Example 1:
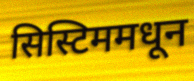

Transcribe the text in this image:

सिस्टिममधून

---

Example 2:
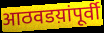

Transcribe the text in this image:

आठवडय़ांपूर्वी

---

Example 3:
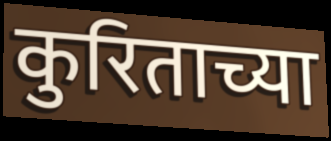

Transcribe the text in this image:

कुरिताच्या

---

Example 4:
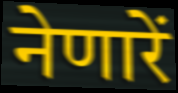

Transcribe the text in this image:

नेणारें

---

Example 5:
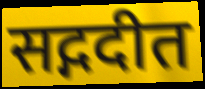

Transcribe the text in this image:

सद्गदीत